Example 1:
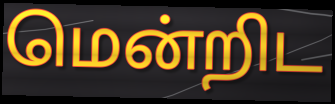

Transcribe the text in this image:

மென்றிட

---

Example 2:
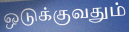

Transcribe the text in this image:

ஒடுக்குவதும்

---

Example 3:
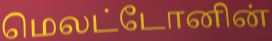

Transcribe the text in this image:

மெலட்டோனின்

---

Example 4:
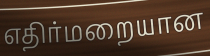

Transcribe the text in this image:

எதிர்மறையான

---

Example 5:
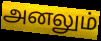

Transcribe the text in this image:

அனலும்